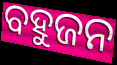
ବହୁଜନ